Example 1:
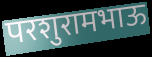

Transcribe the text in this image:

परशुरामभाऊ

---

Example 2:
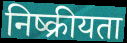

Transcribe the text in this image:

निष्क्रीयता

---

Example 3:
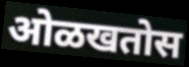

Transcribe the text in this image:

ओळखतोस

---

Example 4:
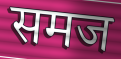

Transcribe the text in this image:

समज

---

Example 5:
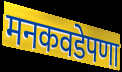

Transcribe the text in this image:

मनकवडेपणा